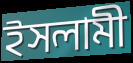
ইসলামী